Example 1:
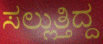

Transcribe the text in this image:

ಸಲ್ಲುತ್ತಿದ್ದ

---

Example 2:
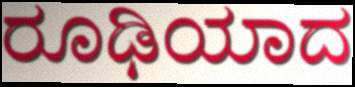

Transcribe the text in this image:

ರೂಢಿಯಾದ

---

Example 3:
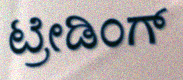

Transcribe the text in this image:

ಟ್ರೇಡಿಂಗ್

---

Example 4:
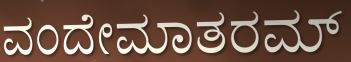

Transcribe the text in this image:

ವಂದೇಮಾತರಮ್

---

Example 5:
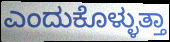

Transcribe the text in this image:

ಎಂದುಕೊಳ್ಳುತ್ತಾ